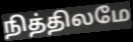
நித்திலமே